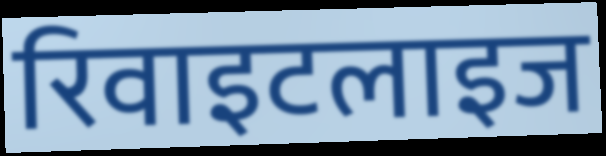
रिवाइटलाइज